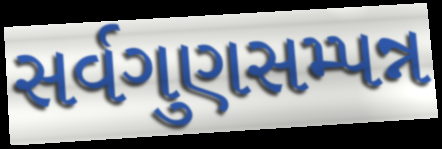
સર્વગુણસમ્પન્ન